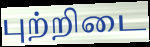
புற்றிடை